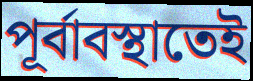
পূর্বাবস্থাতেই